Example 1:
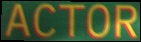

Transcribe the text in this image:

ACTOR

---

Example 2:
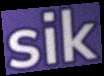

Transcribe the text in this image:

sik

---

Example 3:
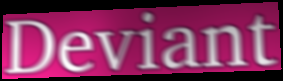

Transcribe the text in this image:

Deviant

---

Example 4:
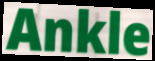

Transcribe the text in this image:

Ankle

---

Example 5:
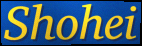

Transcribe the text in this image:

Shohei